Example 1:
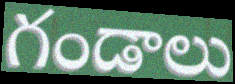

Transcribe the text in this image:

గండాలు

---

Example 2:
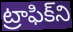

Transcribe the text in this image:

ట్రాఫిక్‌ని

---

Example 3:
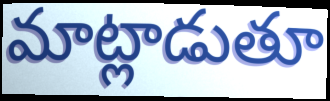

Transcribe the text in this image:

మాట్లాడుతూ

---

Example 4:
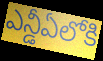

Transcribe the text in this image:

ఎన్డీఏలోకి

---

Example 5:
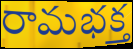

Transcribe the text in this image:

రామభక్త